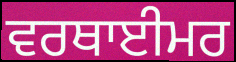
ਵਰਥਾਈਮਰ